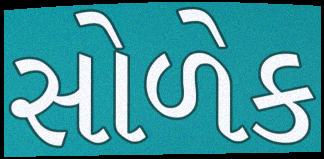
સોળેક